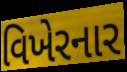
વિખેરનાર